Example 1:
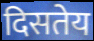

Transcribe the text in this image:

दिसतेय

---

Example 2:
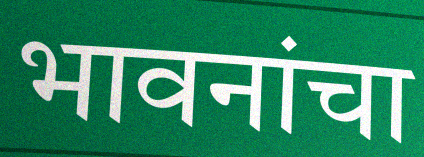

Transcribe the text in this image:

भावनांचा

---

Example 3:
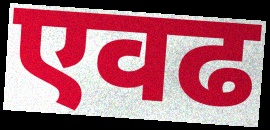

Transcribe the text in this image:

एवढ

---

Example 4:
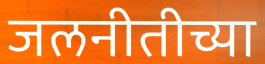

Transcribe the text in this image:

जलनीतीच्या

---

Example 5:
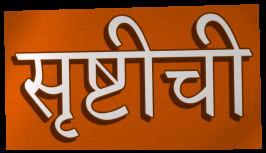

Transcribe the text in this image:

सृष्टीची